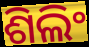
ଶିଲିଂ